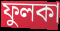
ফুলকা